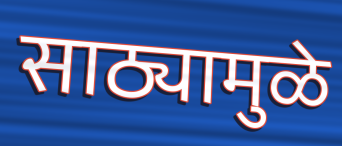
साठ्यामुळे